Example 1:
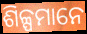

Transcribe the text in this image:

ଶିଳ୍ପମାନେ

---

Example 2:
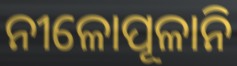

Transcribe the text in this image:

ନୀଳୋପୂଳାନି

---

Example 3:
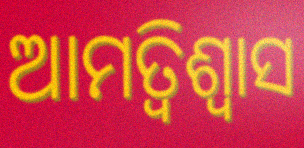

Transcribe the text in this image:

ଆମତ୍ବିଶ୍ୱାସ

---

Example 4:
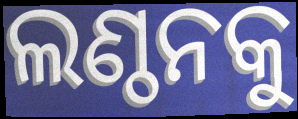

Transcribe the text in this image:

ଲଣ୍ଠନକୁ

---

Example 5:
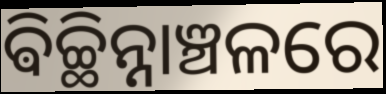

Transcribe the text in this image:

ଵିଚ୍ଛିନ୍ନାଞ୍ଚଳରେ